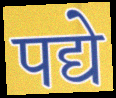
पद्ये